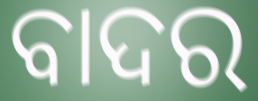
ବାଦର